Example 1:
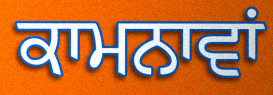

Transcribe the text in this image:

ਕਾਮਨਾਵਾਂ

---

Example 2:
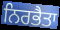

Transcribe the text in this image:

ਨਿਰਭੈਤਾ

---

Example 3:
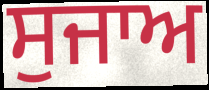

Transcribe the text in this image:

ਸੁਜਾਅ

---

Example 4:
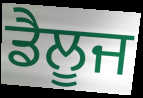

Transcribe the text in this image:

ਡੈਲੂਜ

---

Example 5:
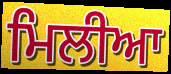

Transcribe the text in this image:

ਮਿਲੀਆ